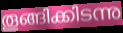
തൂങ്ങിക്കിടന്നു